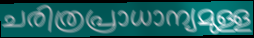
ചരിത്രപ്രാധാന്യമുള്ള